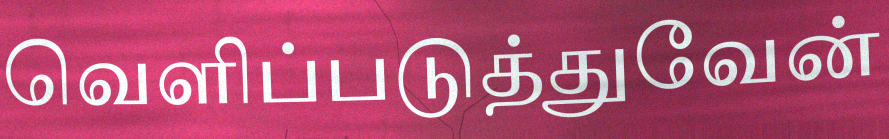
வெளிப்படுத்துவேன்